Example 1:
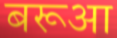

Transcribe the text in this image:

बरूआ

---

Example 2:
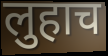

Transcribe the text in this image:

लुहाच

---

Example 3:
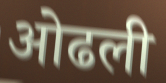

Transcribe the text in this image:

ओढली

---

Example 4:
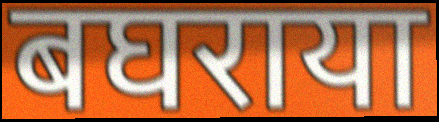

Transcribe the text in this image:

बघराया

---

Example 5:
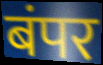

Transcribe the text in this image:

बंपर